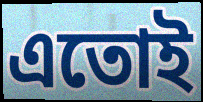
এতোই